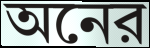
অনের